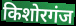
किशोरगंज